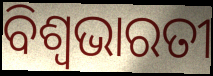
ବିଶ୍ୱଭାରତୀ